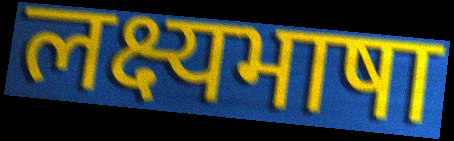
लक्ष्यभाषा